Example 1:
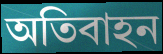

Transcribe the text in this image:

অতিবাহন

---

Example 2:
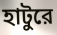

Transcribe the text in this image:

হাটুরে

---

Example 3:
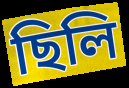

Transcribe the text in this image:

ছিলি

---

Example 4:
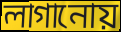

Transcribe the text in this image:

লাগানোয়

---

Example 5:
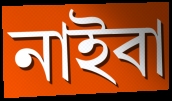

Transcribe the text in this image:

নাইবা